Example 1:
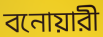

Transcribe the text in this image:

বনোয়ারী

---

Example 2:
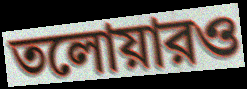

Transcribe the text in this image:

তলোয়ারও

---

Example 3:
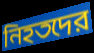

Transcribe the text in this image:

নিহতদের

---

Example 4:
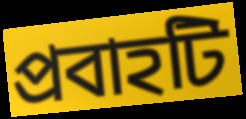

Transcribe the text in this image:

প্রবাহটি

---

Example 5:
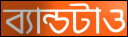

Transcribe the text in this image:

ব্যান্ডটাও